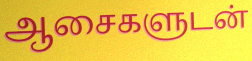
ஆசைகளுடன்